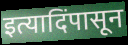
इत्यादिंपासून